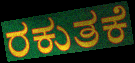
ರಕುತಕೆ